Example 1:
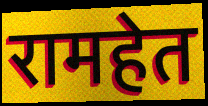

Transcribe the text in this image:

रामहेत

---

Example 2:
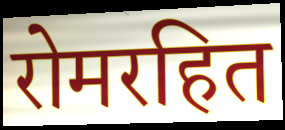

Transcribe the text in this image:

रोमरहित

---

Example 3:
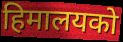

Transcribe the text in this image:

हिमालयको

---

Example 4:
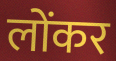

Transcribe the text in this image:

लोंकर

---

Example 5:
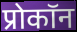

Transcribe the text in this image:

प्रोकॉन